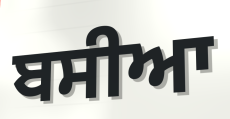
ਬਸੀਆ